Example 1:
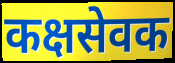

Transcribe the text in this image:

कक्षसेवक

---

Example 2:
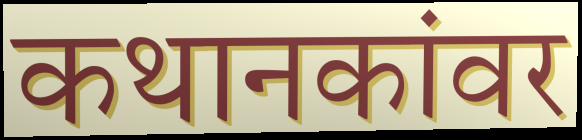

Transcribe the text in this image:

कथानकांवर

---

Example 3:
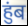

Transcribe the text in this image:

हुंब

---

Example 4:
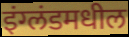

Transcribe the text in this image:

इंग्‍लंडमधील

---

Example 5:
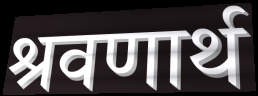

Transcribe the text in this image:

श्रवणार्थ